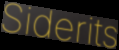
Siderits